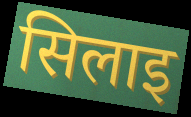
सिलाइ